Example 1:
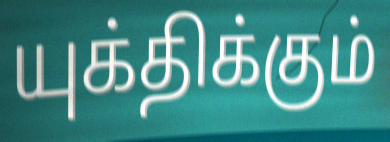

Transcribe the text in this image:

யுக்திக்கும்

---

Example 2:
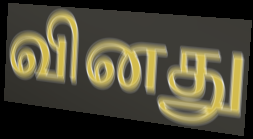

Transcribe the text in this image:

வினது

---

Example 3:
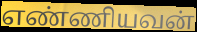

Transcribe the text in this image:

எண்ணியவன்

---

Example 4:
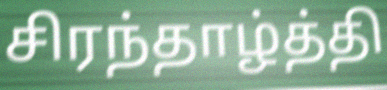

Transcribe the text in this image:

சிரந்தாழ்த்தி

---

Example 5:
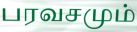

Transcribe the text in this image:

பரவசமும்